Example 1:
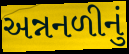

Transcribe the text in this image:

અન્નનળીનું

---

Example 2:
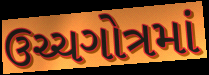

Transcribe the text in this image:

ઉચ્ચગોત્રમાં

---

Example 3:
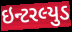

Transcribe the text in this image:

ઇન્ટરલ્યુડ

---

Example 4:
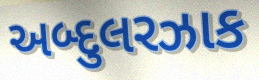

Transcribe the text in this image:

અબ્દુલરઝાક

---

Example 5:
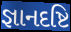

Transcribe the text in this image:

જ્ઞાનદષ્ટિ